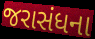
જરાસંધના